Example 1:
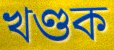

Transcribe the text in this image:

খণ্ডক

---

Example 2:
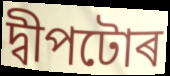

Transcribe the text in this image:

দ্বীপটোৰ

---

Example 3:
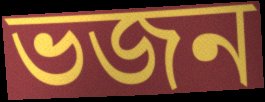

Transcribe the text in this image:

ভজন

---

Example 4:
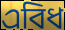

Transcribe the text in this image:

এবিধ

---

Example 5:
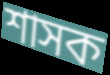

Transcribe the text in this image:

শাসক